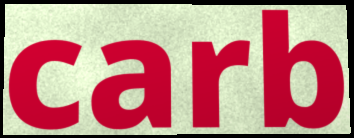
carb